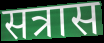
सत्रास